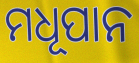
ମଧୂପାନ